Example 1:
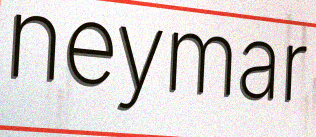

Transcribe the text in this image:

neymar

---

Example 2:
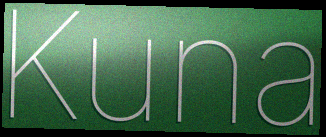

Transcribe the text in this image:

Kuna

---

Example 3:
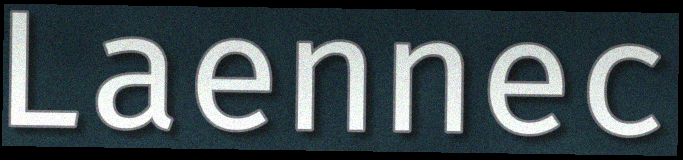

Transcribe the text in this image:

Laennec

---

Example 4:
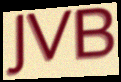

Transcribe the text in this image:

JVB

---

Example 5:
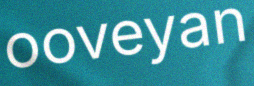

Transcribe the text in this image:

ooveyan